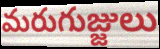
మరుగుజ్జులు